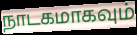
நாடகமாகவும்